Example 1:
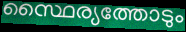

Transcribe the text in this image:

സ്ഥൈര്യത്തോടും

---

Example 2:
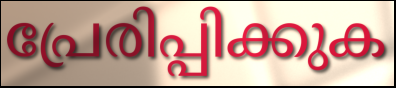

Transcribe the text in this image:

പ്രേരിപ്പിക്കുക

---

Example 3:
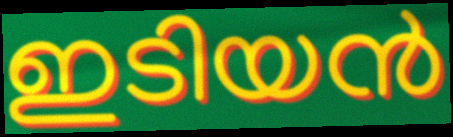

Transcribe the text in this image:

ഇടിയൻ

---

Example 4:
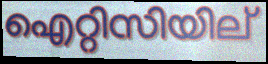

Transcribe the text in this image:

ഐറ്റിസിയില്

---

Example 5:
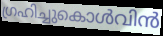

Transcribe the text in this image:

ഗ്രഹിച്ചുകൊൾവിൻ